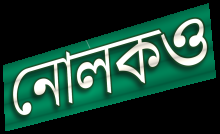
নোলকও